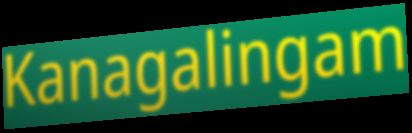
Kanagalingam